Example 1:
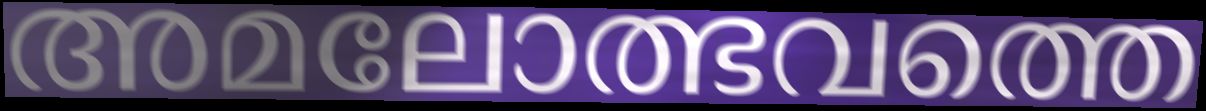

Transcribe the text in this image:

അമലോത്ഭവത്തെ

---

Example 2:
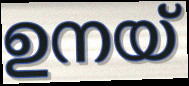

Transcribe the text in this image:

ഉനയ്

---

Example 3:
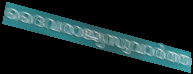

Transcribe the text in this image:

ദൈവരാജ്യസുവാർത്ത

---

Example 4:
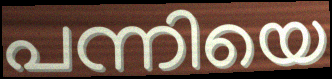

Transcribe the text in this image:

പന്നിയെ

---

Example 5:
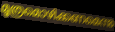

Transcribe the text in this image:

മൂത്രമൊഴിക്കണമെന്നു